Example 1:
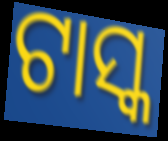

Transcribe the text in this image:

ଟାସ୍କ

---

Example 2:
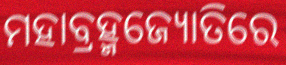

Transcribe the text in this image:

ମହାବ୍ରହ୍ମଜ୍ୟୋତିରେ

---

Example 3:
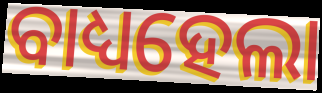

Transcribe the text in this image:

ବାଧ୍ୟହେଲା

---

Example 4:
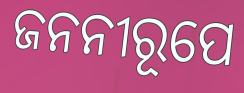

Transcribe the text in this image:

ଜନନୀରୂପେ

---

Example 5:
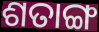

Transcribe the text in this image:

ଶତାଙ୍ଗ